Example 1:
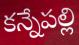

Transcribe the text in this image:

కన్నేపల్లి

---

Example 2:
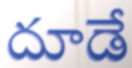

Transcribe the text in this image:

దూడే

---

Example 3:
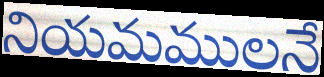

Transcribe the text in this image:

నియమములనే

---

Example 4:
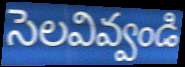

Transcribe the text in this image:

సెలవివ్వండి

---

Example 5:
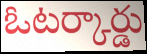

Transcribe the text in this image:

ఓటర్కార్డు